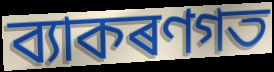
ব্যাকৰণগত